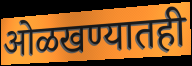
ओळखण्यातही